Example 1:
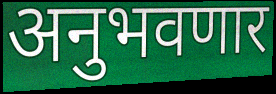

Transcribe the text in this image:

अनुभवणार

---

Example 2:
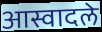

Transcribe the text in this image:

आस्वादले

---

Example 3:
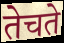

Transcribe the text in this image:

तेचते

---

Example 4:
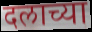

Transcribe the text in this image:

दलाच्या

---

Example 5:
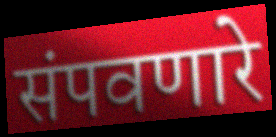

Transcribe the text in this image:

संपवणारे